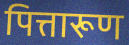
पित्तारूण